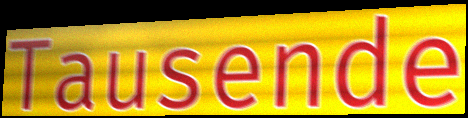
Tausende